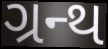
ગ્રન્થ